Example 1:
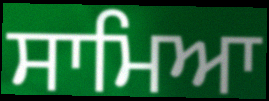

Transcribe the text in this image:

ਸਾਮਿਆ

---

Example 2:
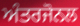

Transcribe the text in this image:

ਅੰਤਰਜੋਨਲ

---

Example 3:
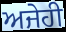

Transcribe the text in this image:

ਅਜੇਹੀ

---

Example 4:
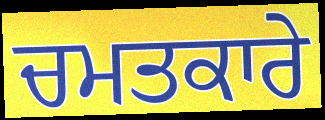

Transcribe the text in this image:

ਚਮਤਕਾਰੇ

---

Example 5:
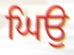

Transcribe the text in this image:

ਘਿਉ